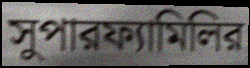
সুপারফ্যামিলির